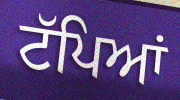
ਟੱਪਿਆਂ